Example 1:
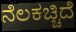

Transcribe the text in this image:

ನೆಲಕಚ್ಚಿದೆ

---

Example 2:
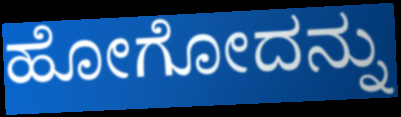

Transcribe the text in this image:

ಹೋಗೋದನ್ನು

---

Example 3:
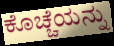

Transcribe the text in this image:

ಕೊಚ್ಚೆಯನ್ನು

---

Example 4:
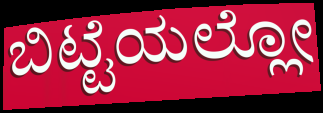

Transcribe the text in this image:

ಬಿಟ್ಟೆಯಲ್ಲೋ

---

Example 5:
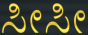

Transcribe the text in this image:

ಸೀಸೀ